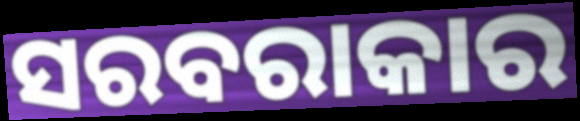
ସରବରାକାର